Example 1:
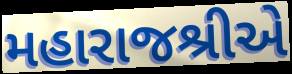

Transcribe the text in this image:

મહારાજશ્રીએ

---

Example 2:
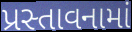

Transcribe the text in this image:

પ્રસ્તાવનામાં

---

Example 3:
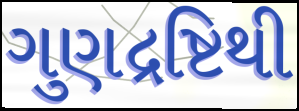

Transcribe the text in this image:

ગુણદ્રષ્ટિથી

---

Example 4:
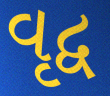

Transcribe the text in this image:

વૃદ્વ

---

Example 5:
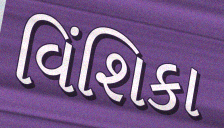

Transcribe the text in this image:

વિંશિકા